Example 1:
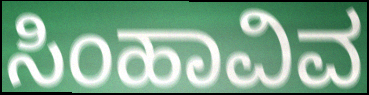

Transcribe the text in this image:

ಸಿಂಹಾವಿವ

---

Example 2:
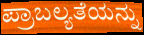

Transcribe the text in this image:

ಪ್ರಾಬಲ್ಯತೆಯನ್ನು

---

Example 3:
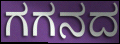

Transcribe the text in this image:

ಗಗನದ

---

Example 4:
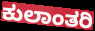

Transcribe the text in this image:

ಕುಲಾಂತರಿ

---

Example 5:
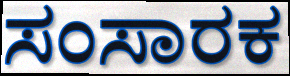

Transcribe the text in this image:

ಸಂಸಾರಕ